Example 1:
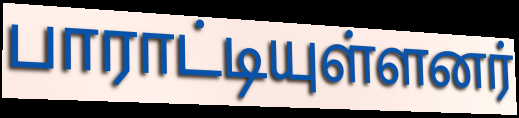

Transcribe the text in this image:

பாராட்டியுள்ளனர்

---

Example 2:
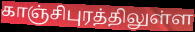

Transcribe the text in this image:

காஞ்சிபுரத்திலுள்ள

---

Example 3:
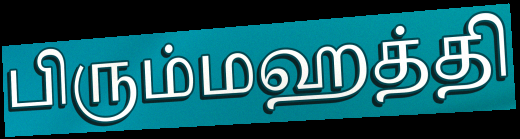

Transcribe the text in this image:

பிரும்மஹத்தி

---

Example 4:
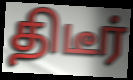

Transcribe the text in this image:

திடீர்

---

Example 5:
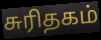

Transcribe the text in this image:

சுரிதகம்